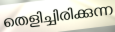
തെളിച്ചിരിക്കുന്ന